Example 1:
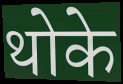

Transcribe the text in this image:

थोके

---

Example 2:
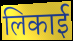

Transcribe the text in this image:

लिकाई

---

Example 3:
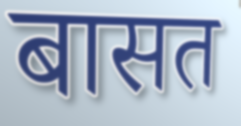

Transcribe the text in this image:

बासत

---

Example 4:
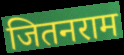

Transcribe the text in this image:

जितनराम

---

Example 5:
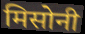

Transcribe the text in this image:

मिसोनी